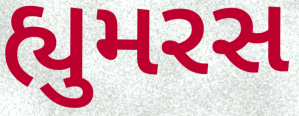
હ્યુમરસ